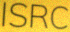
ISRC